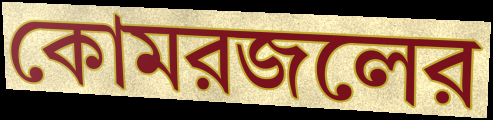
কোমরজলের